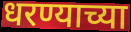
धरण्याच्या